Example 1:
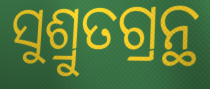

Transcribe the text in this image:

ସୁଶ୍ରୁତଗ୍ରନ୍ଥ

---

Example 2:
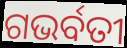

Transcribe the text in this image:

ଗଭର୍ବତୀ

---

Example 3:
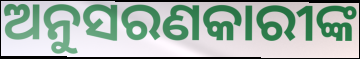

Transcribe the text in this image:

ଅନୁସରଣକାରୀଙ୍କ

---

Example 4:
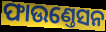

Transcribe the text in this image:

ଫାଉଣ୍ତେସନ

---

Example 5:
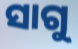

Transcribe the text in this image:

ସାଗୁ